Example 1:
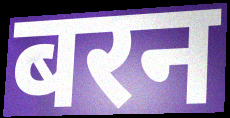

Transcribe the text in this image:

बरन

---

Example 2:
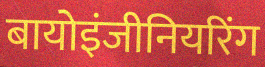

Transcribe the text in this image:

बायोइंजीनियरिंग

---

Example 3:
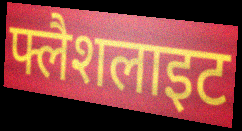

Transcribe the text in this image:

फ्लैशलाइट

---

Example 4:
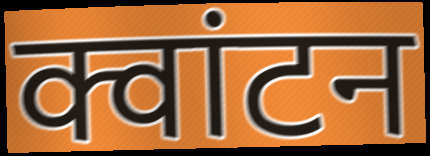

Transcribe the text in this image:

क्वांटन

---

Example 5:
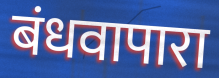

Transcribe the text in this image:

बंधवापारा